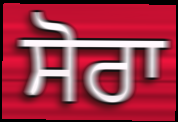
ਸੋਰਾ